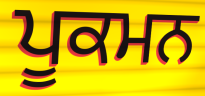
ਪੂਕਮਨ